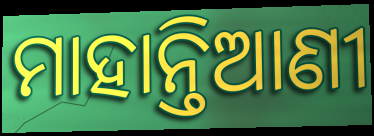
ମାହାନ୍ତିଆଣୀ